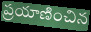
ప్రయాణించిన